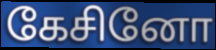
கேசினோ